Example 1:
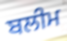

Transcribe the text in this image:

ਬਲੀਮ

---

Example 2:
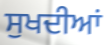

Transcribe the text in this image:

ਸੁਖਦੀਆਂ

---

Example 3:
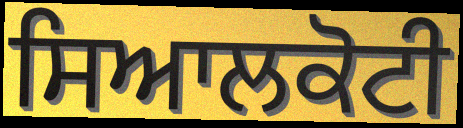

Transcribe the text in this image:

ਸਿਆਲਕੋਟੀ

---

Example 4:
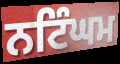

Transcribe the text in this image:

ਨਟਿੰਘਮ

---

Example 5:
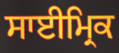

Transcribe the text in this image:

ਸਾਈਮ੍ਰਿਕ